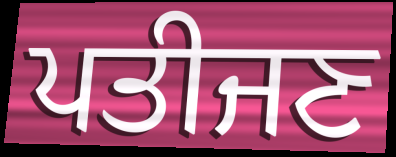
ਪਤੀਜਣ